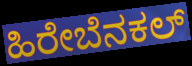
ಹಿರೇಬೆನಕಲ್